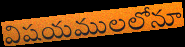
విషయములలోనూ